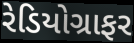
રેડિયોગ્રાફર